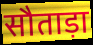
सौताड़ा